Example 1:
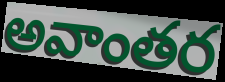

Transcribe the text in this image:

అవాంతర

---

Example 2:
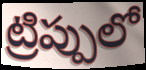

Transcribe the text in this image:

ట్రిప్పులో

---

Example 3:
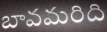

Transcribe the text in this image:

బావమరిది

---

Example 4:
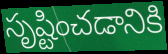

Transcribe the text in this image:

సృష్టించడానికి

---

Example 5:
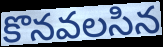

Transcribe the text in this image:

కొనవలసిన